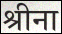
श्रीना